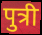
पुत्री